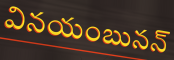
వినయంబునన్